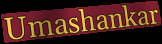
Umashankar